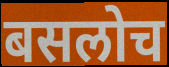
बसलोच